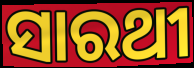
ସାରଥୀ